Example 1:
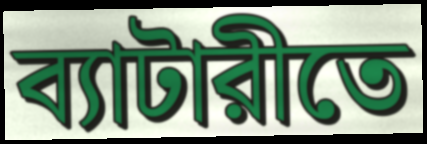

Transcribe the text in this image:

ব্যাটারীতে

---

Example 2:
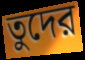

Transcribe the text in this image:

তুদের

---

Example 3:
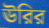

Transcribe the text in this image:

ঊরির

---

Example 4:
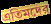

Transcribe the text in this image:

এতিমদের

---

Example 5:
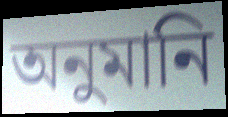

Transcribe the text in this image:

অনুমানি